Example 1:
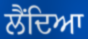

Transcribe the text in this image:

ਲੈਂਦਿਆ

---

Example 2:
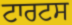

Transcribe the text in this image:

ਟਾਰਟਸ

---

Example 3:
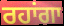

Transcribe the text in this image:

ਰਹਾਂਗਾ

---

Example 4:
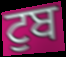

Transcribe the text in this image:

ਟੁਬ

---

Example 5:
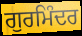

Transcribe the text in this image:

ਗੁਰਮਿੰਦਰ